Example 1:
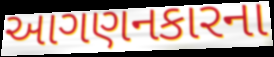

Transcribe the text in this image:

આગણનકારના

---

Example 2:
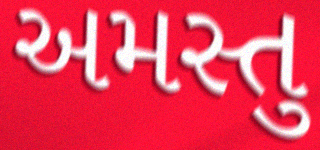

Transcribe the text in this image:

અમસ્તુ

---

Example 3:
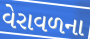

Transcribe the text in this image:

વેરાવળના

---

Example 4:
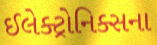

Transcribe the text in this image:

ઈલેક્ટ્રોનિક્સના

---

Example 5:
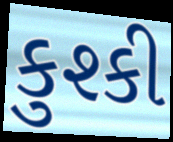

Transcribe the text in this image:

કુશ્કી